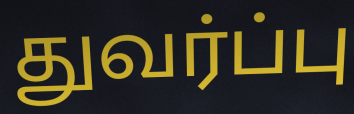
துவர்ப்பு